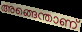
അങ്ങെന്താണ്